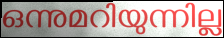
ഒന്നുമറിയുന്നില്ല